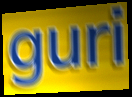
guri